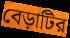
বেড়াটির